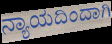
ನ್ಯಾಯದಿಂದಾಗಿ